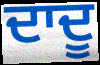
ਦਾਦੂ